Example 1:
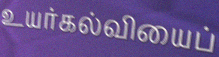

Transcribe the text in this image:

உயர்கல்வியைப்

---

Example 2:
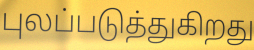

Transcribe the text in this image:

புலப்படுத்துகிறது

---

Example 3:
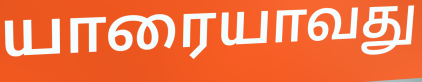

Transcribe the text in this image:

யாரையாவது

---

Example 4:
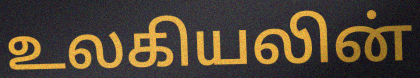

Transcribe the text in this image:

உலகியலின்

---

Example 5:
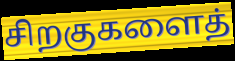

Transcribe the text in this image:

சிறகுகளைத்